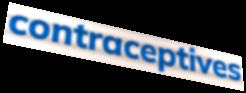
contraceptives